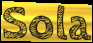
Sola